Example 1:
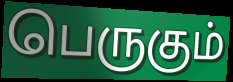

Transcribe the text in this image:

பெருகும்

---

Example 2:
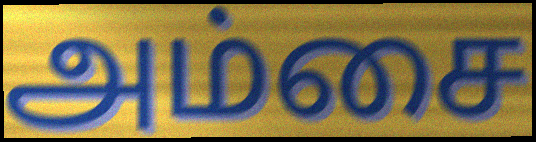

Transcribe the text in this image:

அம்சை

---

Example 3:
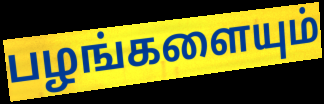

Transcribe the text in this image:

பழங்களையும்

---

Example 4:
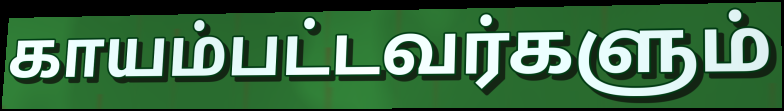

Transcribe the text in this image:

காயம்பட்டவர்களும்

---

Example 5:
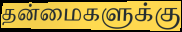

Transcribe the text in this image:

தன்மைகளுக்கு